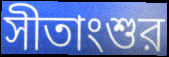
সীতাংশুর